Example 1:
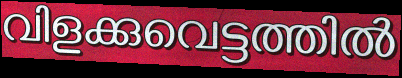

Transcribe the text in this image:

വിളക്കുവെട്ടത്തിൽ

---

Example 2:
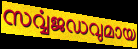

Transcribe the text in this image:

സൎവ്വജഡവുമായ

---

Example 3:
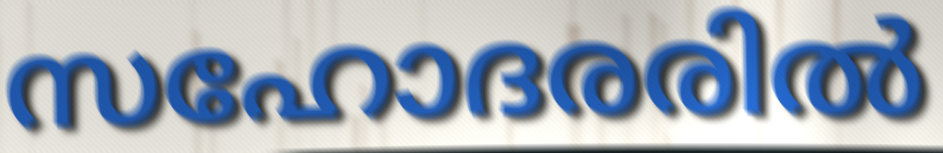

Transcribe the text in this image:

സഹോദരരിൽ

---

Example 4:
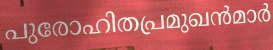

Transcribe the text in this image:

പുരോഹിതപ്രമുഖൻമാർ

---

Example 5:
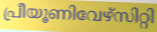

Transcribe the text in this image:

പ്രീയൂണിവേഴ്സിറ്റി